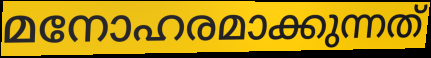
മനോഹരമാക്കുന്നത്